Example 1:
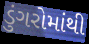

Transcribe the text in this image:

ડુંગરોમાંથી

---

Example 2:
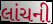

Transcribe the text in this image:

લાંચની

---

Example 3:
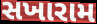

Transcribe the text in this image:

સખારામ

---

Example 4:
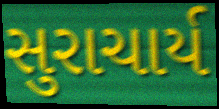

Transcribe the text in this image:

સુરાચાર્ય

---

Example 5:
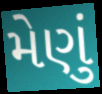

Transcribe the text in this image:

મેણું